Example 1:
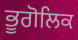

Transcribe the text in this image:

ਭੂਗੋਲਿਕ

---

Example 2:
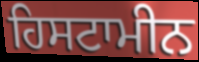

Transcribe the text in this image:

ਹਿਸਟਾਮੀਨ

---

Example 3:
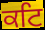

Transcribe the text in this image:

ਕਟਿ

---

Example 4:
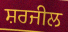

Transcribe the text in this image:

ਸ਼ਰਜੀਲ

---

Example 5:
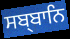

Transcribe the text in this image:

ਸਬ੍ਬਾਨਿ